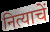
नित्याचें